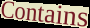
Contains